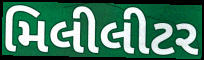
મિલીલીટર